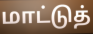
மாட்டுத்